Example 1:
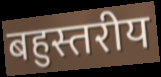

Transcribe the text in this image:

बहुस्तरीय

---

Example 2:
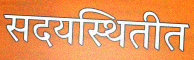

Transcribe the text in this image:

सदयस्थितीत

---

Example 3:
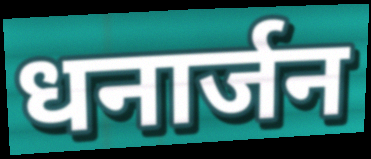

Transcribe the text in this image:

धनार्जन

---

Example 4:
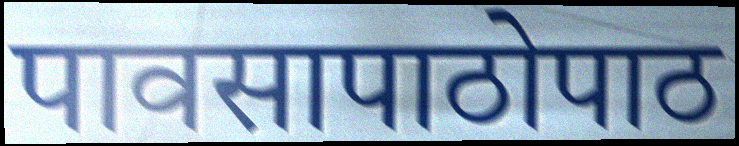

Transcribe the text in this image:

पावसापाठोपाठ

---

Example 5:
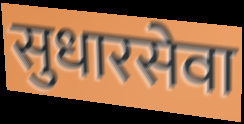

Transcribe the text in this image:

सुधारसेवा